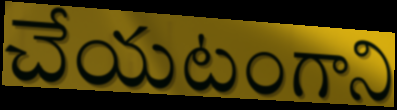
చేయటంగాని